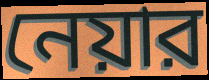
নেয়ার